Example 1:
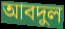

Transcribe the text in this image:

আবদুল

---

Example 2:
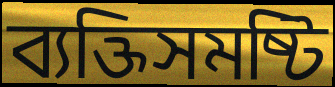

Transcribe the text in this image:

ব্যক্তিসমষ্টি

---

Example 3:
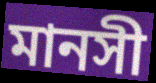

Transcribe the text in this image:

মানসী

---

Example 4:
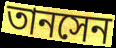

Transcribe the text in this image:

তানসেন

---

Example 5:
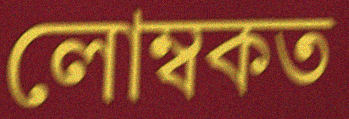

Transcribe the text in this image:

লোম্বকত